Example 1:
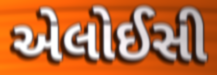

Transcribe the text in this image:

એલોઈસી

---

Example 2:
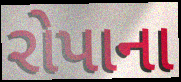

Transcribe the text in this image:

રોપાના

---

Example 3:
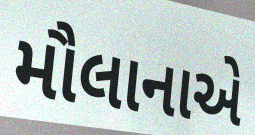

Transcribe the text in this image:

મૌલાનાએ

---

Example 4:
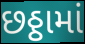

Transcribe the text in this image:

છઠ્ઠામાં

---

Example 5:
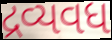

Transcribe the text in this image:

દ્રવ્યવધ